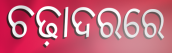
ଚଢ଼ାଦରରେ